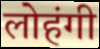
लोहंगी